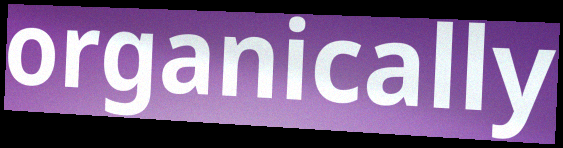
organically